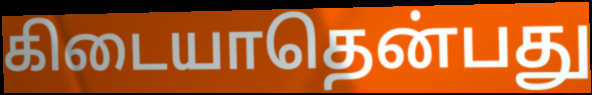
கிடையாதென்பது